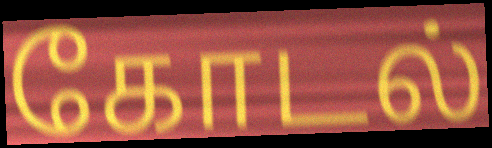
கோடல்